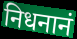
निधनानं